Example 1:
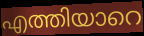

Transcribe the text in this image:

എത്തിയാറെ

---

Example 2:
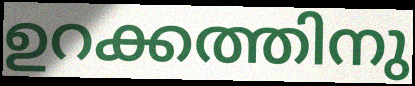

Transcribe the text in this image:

ഉറക്കത്തിനു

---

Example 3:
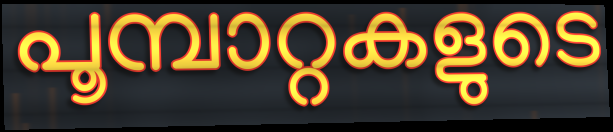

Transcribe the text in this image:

പൂമ്പാറ്റകളുടെ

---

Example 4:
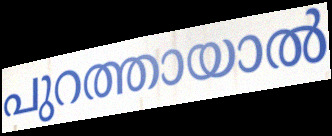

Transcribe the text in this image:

പുറത്തായാൽ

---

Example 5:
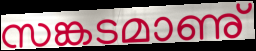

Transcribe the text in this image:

സങ്കടമാണു്